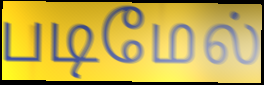
படிமேல்